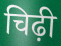
चिढ़ी